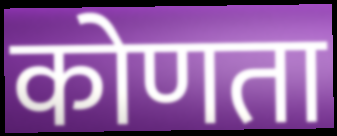
कोणता